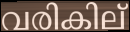
വരികില്